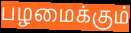
பழமைக்கும்